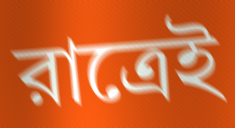
রাত্রেই